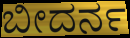
ಬೀದರ್ನ